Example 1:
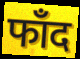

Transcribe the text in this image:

फाँद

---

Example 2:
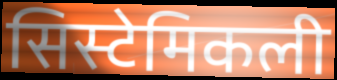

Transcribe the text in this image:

सिस्टेमिकली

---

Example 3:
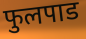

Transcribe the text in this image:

फुलपाड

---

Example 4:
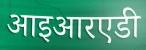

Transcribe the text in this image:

आइआरएडी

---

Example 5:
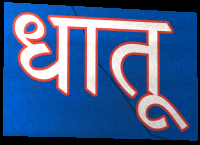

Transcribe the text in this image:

धातू